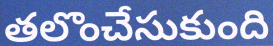
తలొంచేసుకుంది